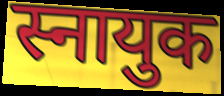
स्नायुक